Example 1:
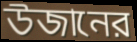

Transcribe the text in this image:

উজানের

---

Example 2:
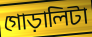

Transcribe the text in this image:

গোড়ালিটা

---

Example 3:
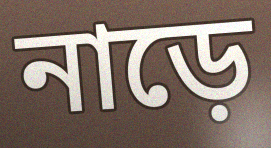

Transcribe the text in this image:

নাড়ে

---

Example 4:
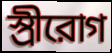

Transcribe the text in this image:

স্ত্রীরোগ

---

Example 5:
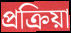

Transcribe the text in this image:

প্রক্রিয়া